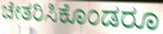
ಚೇತರಿಸಿಕೊಂಡರೂ